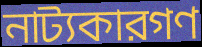
নাট্যকারগণ